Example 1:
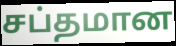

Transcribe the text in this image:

சப்தமான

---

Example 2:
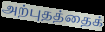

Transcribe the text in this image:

அற்புதத்தைக்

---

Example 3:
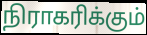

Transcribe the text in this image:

நிராகரிக்கும்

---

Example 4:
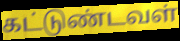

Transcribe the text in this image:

கட்டுண்டவள்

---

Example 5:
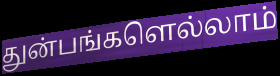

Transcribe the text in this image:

துன்பங்களெல்லாம்